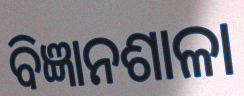
ବିଜ୍ଞାନଶାଳା